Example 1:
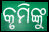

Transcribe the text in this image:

କୃମିଙ୍କୁ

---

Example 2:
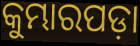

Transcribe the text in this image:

କୁମ୍ଭାରପଡ଼ା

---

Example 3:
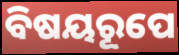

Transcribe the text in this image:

ବିଷୟରୂପେ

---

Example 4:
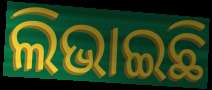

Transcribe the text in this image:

ଲିଭାଇଛି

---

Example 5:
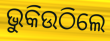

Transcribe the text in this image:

ଭୁକିଉଠିଲେ